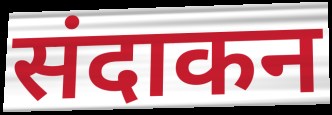
संदाकन